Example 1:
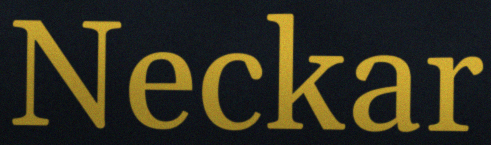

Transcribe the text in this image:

Neckar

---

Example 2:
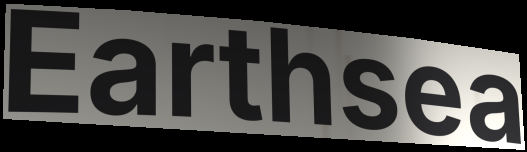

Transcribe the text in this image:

Earthsea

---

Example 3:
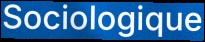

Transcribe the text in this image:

Sociologique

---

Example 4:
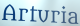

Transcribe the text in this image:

Arturia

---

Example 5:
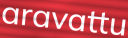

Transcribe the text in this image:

aravattu